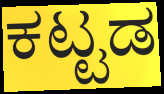
ಕಟ್ಟಡ